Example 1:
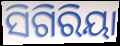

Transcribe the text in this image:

ସିଗିରିୟା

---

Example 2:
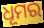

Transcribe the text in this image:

ଧୂମର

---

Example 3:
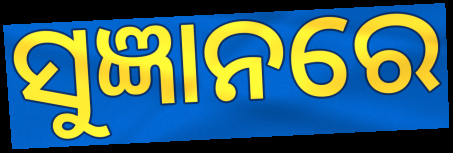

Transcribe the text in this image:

ସୁଜ୍ଞାନରେ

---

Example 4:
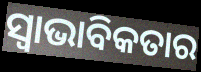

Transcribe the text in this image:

ସ୍ୱାଭାବିକତାର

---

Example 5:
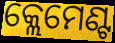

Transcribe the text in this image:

କ୍ଲେମେଣ୍ଟ